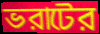
ভরাটের